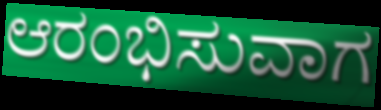
ಆರಂಭಿಸುವಾಗ